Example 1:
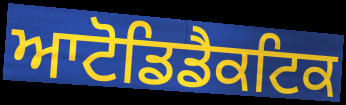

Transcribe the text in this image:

ਆਟੋਡਿਡੈਕਟਿਕ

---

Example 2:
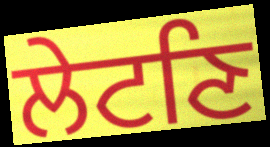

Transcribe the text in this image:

ਲੇਟਣਿ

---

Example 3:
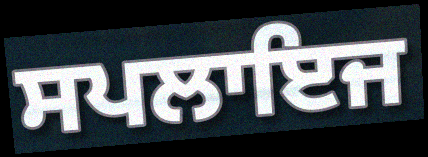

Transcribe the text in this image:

ਸਪਲਾਇਜ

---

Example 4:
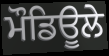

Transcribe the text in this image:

ਮੌਡਿਊਲੇ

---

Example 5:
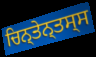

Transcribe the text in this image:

ਚਿਨ੍ਤੇਨ੍ਤਸ੍ਸ